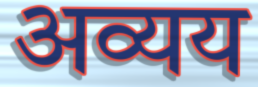
अव्यय